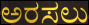
ಅರಸಲು